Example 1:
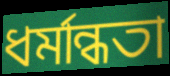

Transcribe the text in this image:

ধর্মান্ধতা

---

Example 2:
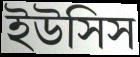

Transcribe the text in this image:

ইউসিস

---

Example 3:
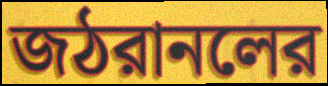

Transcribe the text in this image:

জঠরানলের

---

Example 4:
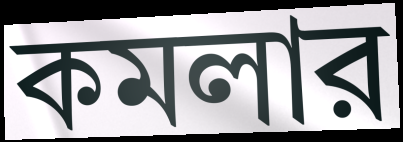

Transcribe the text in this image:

কমলার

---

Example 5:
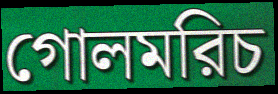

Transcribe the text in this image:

গোলমরিচ